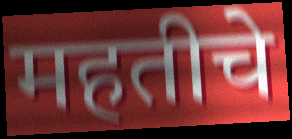
महतीचे